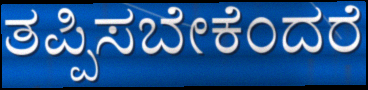
ತಪ್ಪಿಸಬೇಕೆಂದರೆ